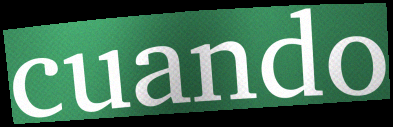
cuando